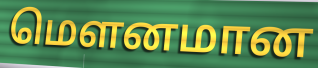
மௌனமான